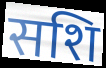
सशि